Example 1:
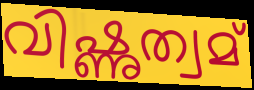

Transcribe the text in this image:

വിഷ്ണുത്വമ്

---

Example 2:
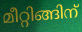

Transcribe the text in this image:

മീറ്റിങ്ങിന്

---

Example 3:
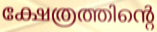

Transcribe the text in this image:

ക്ഷേത്രത്തിന്റെ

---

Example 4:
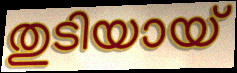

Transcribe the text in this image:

തുടിയായ്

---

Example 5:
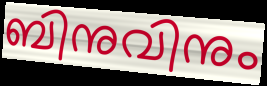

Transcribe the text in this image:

ബിനുവിനും